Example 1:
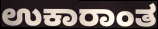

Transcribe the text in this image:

ಉಕಾರಾಂತ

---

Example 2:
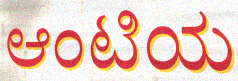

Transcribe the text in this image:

ಆಂಟಿಯ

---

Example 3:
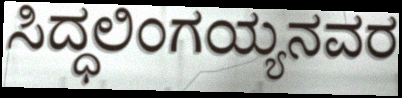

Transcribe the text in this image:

ಸಿದ್ಧಲಿಂಗಯ್ಯನವರ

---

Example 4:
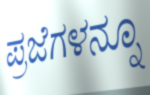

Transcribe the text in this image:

ಪ್ರಜೆಗಳನ್ನೂ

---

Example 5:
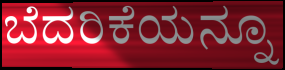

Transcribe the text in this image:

ಬೆದರಿಕೆಯನ್ನೂ